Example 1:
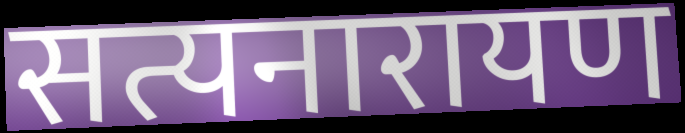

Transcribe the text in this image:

सत्यनारायण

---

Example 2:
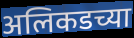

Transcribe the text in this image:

अलिकडच्या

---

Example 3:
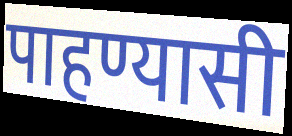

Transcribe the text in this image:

पाहण्यासी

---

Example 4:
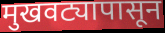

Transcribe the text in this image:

मुखवट्यापासून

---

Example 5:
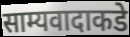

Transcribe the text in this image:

साम्यवादाकडे